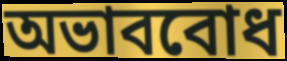
অভাববোধ